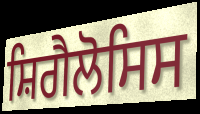
ਸ਼ਿਗੈਲੋਸਿਸ